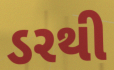
ડરથી